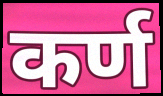
कर्ण